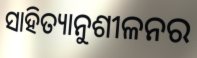
ସାହିତ୍ୟାନୁଶୀଳନର